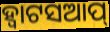
ହ୍ବାଟସଆପ୍